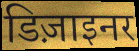
डिज़ाइनर